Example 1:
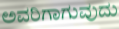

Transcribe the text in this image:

ಅವರಿಗಾಗುವುದು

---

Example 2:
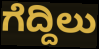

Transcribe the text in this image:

ಗೆದ್ದಿಲು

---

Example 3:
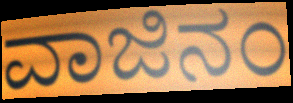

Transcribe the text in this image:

ವಾಜಿನಂ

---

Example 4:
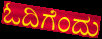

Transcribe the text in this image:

ಓದಿಗೆಂದು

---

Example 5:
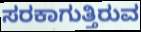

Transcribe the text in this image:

ಸರಕಾಗುತ್ತಿರುವ